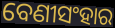
ବେଣୀସଂହାର